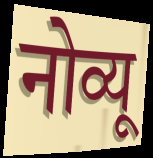
नोव्यू